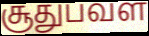
சூதுபவள